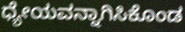
ಧ್ಯೇಯವನ್ನಾಗಿಸಿಕೊಂಡ